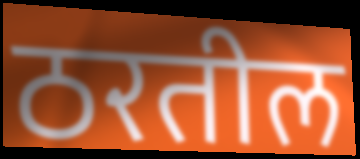
ठरतील